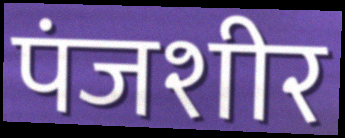
पंजशीर